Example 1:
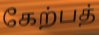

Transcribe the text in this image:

கேற்பத்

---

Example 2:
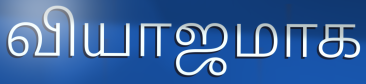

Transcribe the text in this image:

வியாஜமாக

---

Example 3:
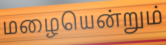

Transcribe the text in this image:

மழையென்றும்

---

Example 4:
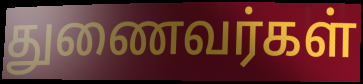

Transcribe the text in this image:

துணைவர்கள்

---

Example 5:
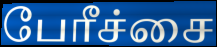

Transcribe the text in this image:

பேரீச்சை